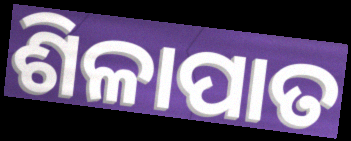
ଶିଳାପାତ